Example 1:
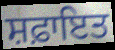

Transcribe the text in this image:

ਸ਼ਫ਼ਾਇਤ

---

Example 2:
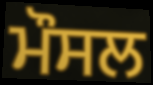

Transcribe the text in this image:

ਮੌਸਲ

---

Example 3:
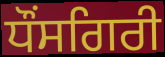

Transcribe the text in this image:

ਧੌਂਸਗਿਰੀ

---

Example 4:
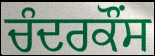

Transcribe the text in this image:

ਚੰਦਰਕੌਂਸ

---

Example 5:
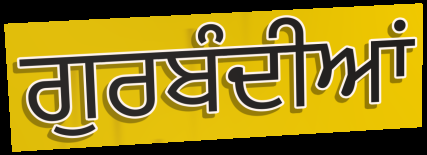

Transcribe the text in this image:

ਗੁਰਬੰਦੀਆਂ